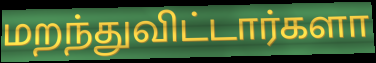
மறந்துவிட்டார்களா